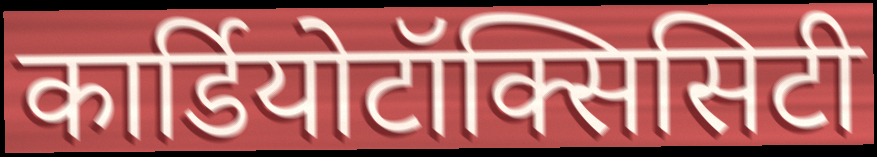
कार्डियोटॉक्सिसिटी